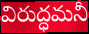
విరుద్ధమనీ